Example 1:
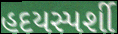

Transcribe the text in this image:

હદયસ્પર્શી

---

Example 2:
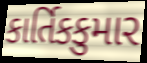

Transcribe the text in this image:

કાર્તિકકુમાર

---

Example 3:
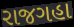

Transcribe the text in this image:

રાજગહા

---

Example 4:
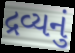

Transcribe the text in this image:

દ્રવ્યનું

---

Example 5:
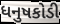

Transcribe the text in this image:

ધનુષકોડી